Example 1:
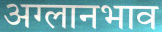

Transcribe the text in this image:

अग्लानभाव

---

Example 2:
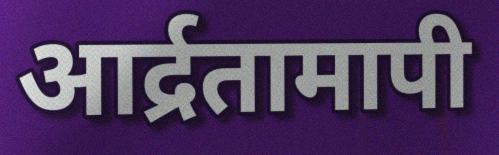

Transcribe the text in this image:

आर्द्रतामापी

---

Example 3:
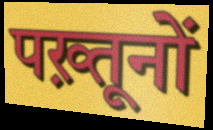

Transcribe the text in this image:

पख़्तूनों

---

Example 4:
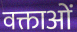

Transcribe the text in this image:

वक्ताओें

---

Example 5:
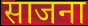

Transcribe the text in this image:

साजना